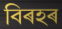
বিৰহৰ